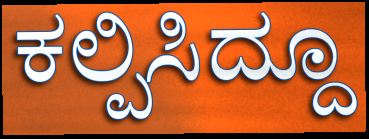
ಕಲ್ಪಿಸಿದ್ದೂ